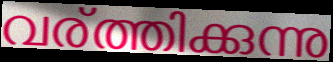
വര്ത്തിക്കുന്നു